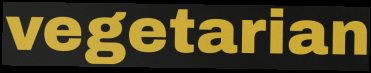
vegetarian